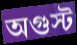
অগুস্ট